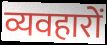
व्यवहारों